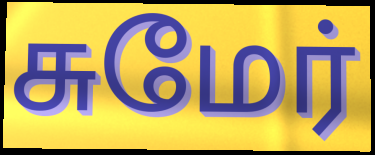
சுமேர்